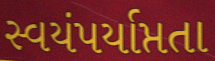
સ્વયંપર્યાપ્તતા